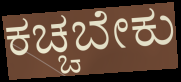
ಕಚ್ಚಬೇಕು